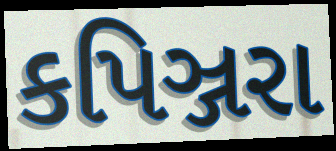
કપિઞ્જરા